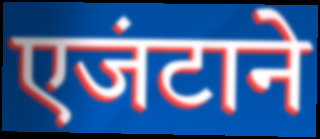
एजंटाने